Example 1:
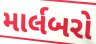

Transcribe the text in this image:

માર્લબરો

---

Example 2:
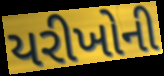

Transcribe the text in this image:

યરીખોની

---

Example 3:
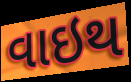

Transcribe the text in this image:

વાઇથ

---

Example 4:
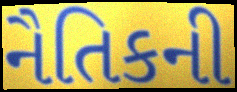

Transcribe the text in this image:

નૈતિકની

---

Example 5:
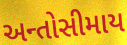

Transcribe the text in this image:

અન્તોસીમાય